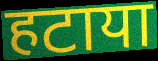
हटाया